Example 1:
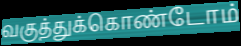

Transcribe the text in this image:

வகுத்துக்கொண்டோம்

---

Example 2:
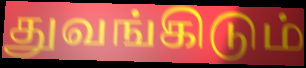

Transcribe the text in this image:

துவங்கிடும்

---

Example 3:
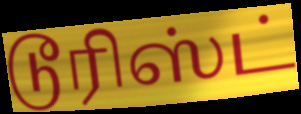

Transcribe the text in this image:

டூரிஸ்ட்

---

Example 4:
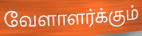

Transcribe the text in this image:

வேளாளர்க்கும்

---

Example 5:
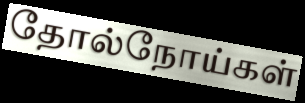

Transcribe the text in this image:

தோல்நோய்கள்